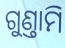
ଗୁଣ୍ତାମି